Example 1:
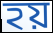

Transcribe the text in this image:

হয়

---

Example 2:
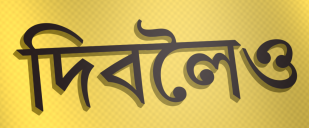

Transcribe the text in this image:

দিবলৈও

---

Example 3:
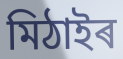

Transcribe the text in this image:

মিঠাইৰ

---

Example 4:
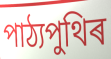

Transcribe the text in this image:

পাঠ্যপুথিৰ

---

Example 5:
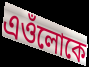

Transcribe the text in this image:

এওঁলোকে